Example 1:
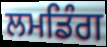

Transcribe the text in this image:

ਲਮਡਿੰਗ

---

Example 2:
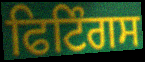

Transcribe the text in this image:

ਫਿਟਿੰਗਸ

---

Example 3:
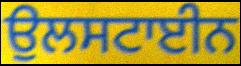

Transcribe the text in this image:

ਉਲਸਟਾਈਨ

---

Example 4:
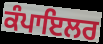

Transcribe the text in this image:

ਕੰਪਾਇਲਰ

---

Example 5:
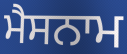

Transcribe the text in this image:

ਮੈਸਨਾਮ